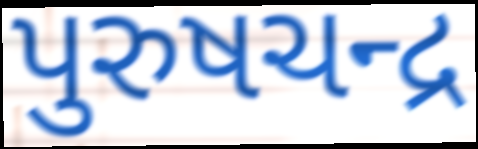
પુરુષચન્દ્ર